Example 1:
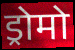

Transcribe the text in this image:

ड्रोमो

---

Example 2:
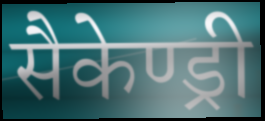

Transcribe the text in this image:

सैकेण्ड्री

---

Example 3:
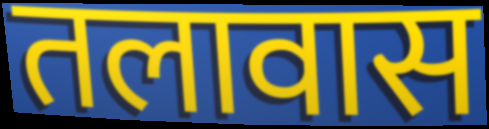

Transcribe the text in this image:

तलावास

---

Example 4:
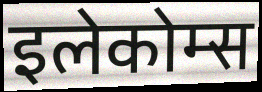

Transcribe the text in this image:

इलेकोम्स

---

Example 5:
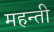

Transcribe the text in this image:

महन्ती